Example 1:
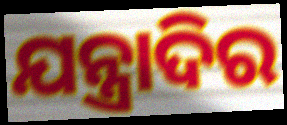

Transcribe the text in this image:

ଯନ୍ତ୍ରାଦିର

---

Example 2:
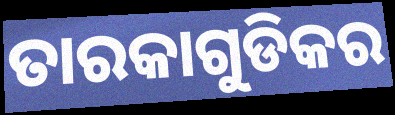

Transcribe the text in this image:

ତାରକାଗୁଡିକର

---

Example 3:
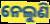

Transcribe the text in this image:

ନେଲୁଣି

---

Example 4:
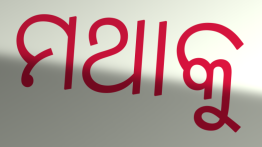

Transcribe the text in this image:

ମଥାକୁ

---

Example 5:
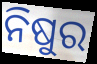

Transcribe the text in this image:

ନିଷୁର